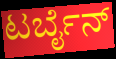
ಟರ್ಬೈನ್